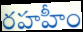
రహహీం